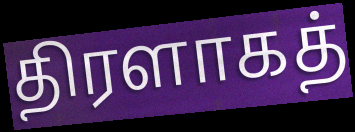
திரளாகத்